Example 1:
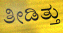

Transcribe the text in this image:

ತೀಡಿತ್ತು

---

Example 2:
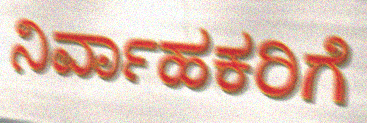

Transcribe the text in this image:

ನಿರ್ವಾಹಕರಿಗೆ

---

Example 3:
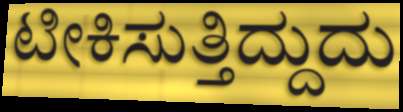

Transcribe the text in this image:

ಟೀಕಿಸುತ್ತಿದ್ದುದು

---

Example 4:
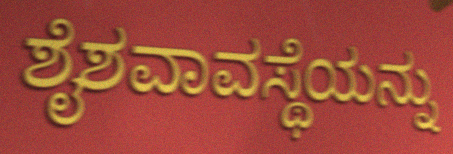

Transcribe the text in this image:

ಶೈಶವಾವಸ್ಥೆಯನ್ನು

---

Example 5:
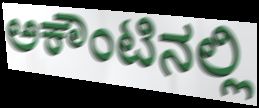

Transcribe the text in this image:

ಅಕೌಂಟಿನಲ್ಲಿ